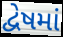
દ્વેષમાં